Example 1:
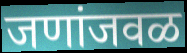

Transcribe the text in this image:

जणांजवळ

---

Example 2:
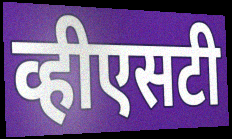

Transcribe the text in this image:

व्हीएसटी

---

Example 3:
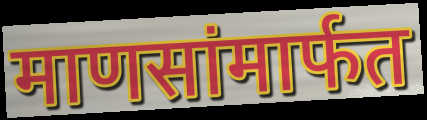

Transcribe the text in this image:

माणसांमार्फत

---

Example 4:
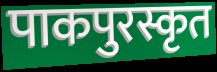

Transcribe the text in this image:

पाकपुरस्कृत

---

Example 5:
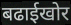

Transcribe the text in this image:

बढाईखोर